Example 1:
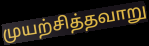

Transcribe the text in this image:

முயற்சித்தவாறு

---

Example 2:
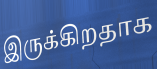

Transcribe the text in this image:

இருக்கிறதாக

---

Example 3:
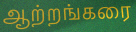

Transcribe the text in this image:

ஆற்றங்கரை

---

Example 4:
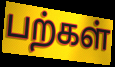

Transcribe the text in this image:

பற்கள்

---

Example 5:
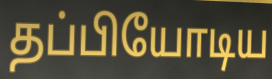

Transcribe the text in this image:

தப்பியோடிய